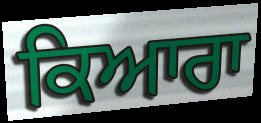
ਕਿਆਰਾ